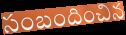
సంబందించిన